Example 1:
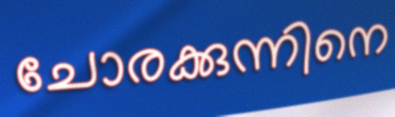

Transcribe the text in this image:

ചോരക്കുന്നിനെ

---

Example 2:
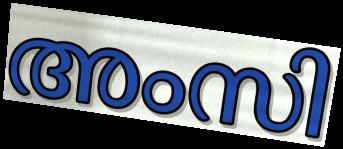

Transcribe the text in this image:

അംസി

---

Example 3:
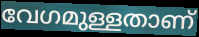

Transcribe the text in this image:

വേഗമുള്ളതാണ്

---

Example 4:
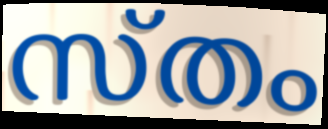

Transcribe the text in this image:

സ്‌തം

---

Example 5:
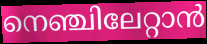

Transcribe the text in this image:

നെഞ്ചിലേറ്റാൻ